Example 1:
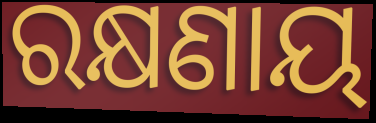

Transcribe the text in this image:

ରକ୍ଷଣାୟ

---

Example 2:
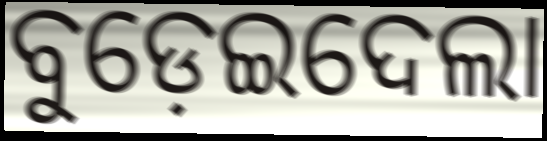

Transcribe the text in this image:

ବୁଡ଼େଇଦେଲା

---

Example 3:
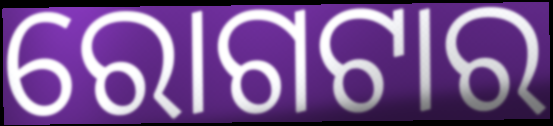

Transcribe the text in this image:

ରୋଗଟାର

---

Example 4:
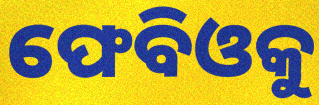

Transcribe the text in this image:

ଫେବିଓକୁ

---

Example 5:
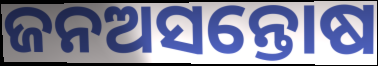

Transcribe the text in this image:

ଜନଅସନ୍ତୋଷ